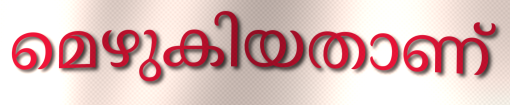
മെഴുകിയതാണ്